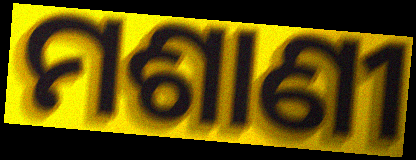
ମଶାଣୀ